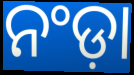
ନଂଡ଼ା